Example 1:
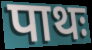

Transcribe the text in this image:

पाथः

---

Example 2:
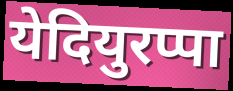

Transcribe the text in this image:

येदियुरप्पा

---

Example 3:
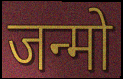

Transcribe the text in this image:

जन्मो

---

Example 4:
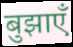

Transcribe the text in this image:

बुझाएँ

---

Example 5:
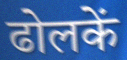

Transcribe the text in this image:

ढोलकें